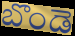
బొండె